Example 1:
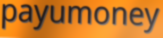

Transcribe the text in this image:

payumoney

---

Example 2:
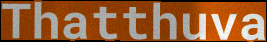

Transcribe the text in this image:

Thatthuva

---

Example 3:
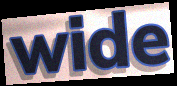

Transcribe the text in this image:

wide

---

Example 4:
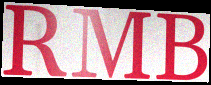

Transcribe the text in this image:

RMB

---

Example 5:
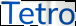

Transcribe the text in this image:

Tetro